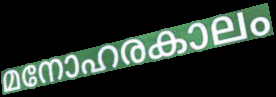
മനോഹരകാലം